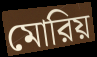
মোরিয়